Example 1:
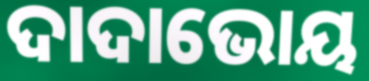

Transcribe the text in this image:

ଦାଦାଭୋୟ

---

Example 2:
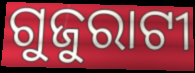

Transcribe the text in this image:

ଗୁଜୁରାଟୀ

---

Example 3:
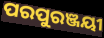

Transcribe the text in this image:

ପରପୁରଞ୍ଜୟୀ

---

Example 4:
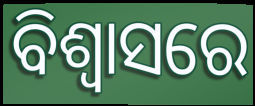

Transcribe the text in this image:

ବିଶ୍ବାସରେ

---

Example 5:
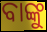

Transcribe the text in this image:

ବାଙ୍କୁ